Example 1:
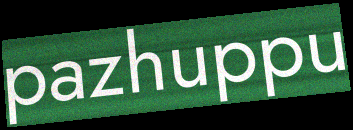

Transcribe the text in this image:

pazhuppu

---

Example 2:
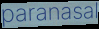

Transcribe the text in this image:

paranasal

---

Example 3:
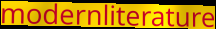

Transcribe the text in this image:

modernliterature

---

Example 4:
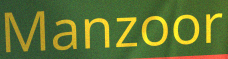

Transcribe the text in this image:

Manzoor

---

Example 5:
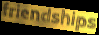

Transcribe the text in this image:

friendships